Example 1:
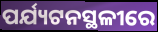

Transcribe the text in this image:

ପର୍ଯ୍ୟଟନସ୍ଥଳୀରେ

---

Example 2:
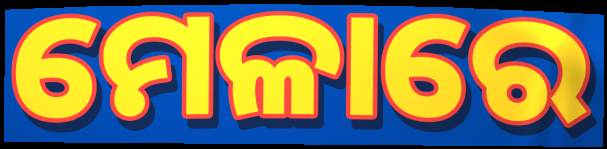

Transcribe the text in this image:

ମେଳାରେ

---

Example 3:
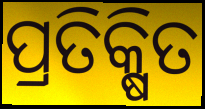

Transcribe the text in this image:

ପ୍ରତିକ୍ଷିତ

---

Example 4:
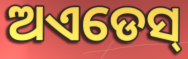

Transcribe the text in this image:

ଅଏଡେସ୍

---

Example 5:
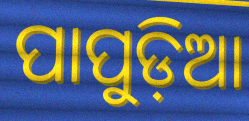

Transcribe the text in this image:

ପାପୁଡ଼ିଆ